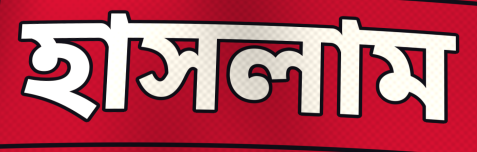
হাসলাম